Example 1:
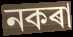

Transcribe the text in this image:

নকৰা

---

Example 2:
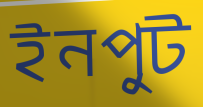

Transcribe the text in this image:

ইনপুট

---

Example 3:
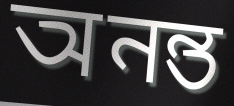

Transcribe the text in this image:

অনন্ত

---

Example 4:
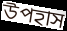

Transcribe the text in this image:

উপহাস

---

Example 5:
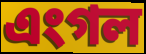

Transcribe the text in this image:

এংগল